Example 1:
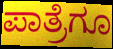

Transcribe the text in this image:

ಪಾತ್ರೆಗೂ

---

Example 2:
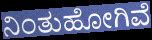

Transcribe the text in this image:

ನಿಂತುಹೋಗಿವೆ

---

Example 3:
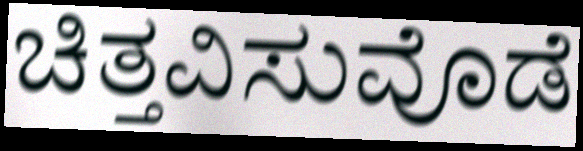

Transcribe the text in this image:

ಚಿತ್ತವಿಸುವೊಡೆ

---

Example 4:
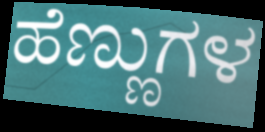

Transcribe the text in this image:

ಹೆಣ್ಣುಗಳ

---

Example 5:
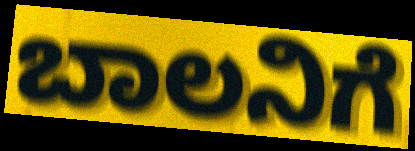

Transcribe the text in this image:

ಬಾಲನಿಗೆ